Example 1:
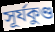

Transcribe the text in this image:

সূর্যকুণ্ড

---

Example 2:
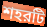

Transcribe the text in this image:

শহরটি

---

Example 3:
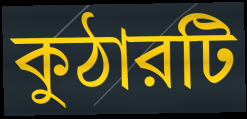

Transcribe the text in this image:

কুঠারটি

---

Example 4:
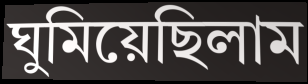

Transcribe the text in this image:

ঘুমিয়েছিলাম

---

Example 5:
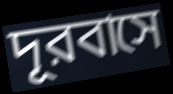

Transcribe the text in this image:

দূরবাসে